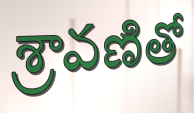
శ్రావణితో